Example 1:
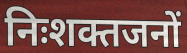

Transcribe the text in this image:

निःशक्तजनों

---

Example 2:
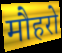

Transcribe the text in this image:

मौहरो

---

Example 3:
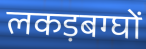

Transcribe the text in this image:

लकड़बग्घों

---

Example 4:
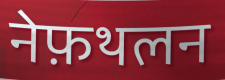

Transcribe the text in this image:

नेफ़थलन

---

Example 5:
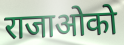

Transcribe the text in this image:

राजाओको